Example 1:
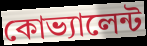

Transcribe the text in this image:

কোভ্যালেন্ট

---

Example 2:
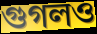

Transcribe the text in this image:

গুগলও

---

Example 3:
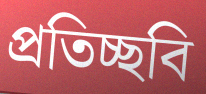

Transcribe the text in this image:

প্রতিচ্ছবি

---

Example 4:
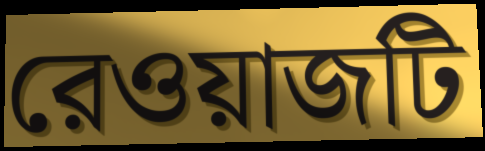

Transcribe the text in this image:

রেওয়াজটি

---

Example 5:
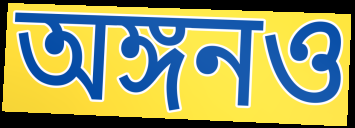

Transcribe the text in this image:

অঙ্গনও